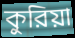
কুরিয়া